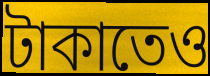
টাকাতেও